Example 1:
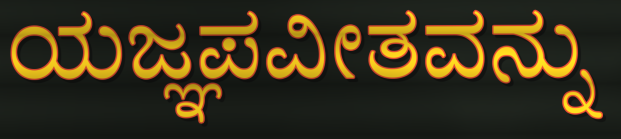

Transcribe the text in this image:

ಯಜ್ಞಪವೀತವನ್ನು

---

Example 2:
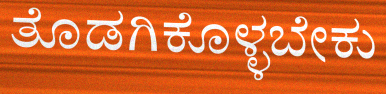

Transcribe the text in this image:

ತೊಡಗಿಕೊಳ್ಳಬೇಕು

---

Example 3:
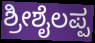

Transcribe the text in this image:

ಶ್ರೀಶೈಲಪ್ಪ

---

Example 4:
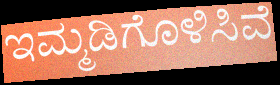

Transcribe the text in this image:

ಇಮ್ಮಡಿಗೊಳಿಸಿವೆ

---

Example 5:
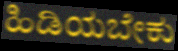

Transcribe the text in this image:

ಹಿಡಿಯಬೇಕು